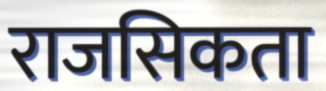
राजसिकता